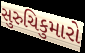
સુરુચિકુમારો